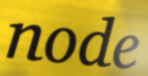
node